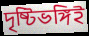
দৃষ্টিভঙ্গিই